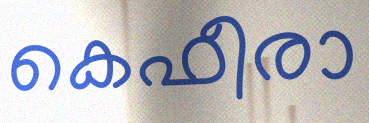
കെഫീരാ